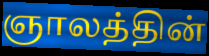
ஞாலத்தின்